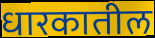
धारकातील